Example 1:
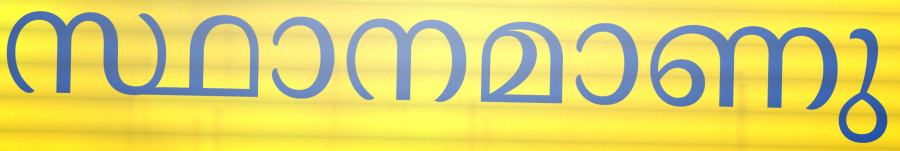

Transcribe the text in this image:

സ്ഥാനമാണു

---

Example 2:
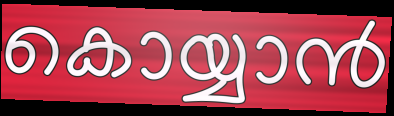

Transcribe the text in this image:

കൊയ്യാൻ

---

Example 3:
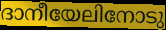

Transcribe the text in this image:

ദാനീയേലിനോടു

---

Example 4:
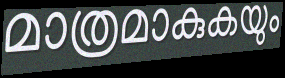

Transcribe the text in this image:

മാത്രമാകുകയും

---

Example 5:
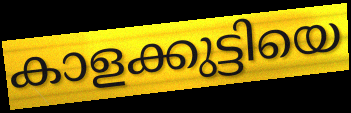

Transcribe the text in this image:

കാളക്കുട്ടിയെ